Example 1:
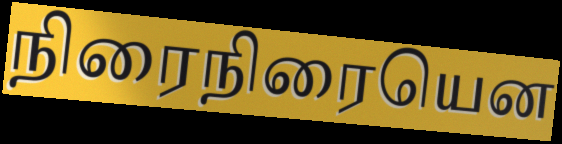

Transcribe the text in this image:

நிரைநிரையென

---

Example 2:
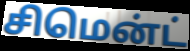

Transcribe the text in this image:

சிமென்ட்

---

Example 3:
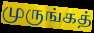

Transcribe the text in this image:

முருங்கத்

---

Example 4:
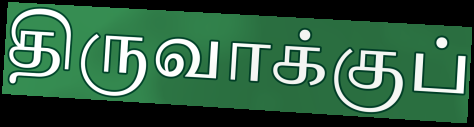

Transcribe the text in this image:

திருவாக்குப்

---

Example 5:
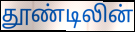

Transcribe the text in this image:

தூண்டிலின்